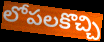
లోపలకొచ్చి